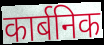
कार्बनिक